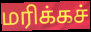
மரிக்கச்